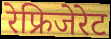
रेफ्रिजेरेट